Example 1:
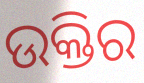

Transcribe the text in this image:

ଉକ୍ତିର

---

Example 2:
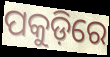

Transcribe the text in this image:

ପକୁଡ଼ିରେ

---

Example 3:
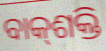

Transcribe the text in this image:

ବାକ୍‍ଶକ୍ତି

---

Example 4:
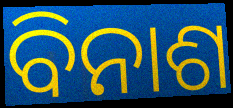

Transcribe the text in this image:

ବିନାଶ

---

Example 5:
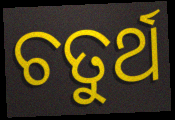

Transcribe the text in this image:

ଚତୁର୍ଥ